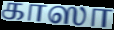
காஸா